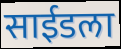
साईडला